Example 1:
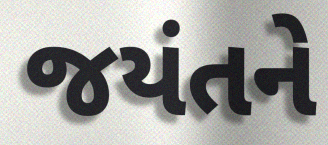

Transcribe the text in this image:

જયંતને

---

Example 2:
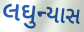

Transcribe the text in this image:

લઘુન્યાસ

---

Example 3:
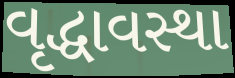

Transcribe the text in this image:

વૃદ્ધાવસ્થા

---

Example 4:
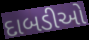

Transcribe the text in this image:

દાબડીઓ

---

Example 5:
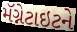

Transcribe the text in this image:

મૅગ્નેટાઇટને